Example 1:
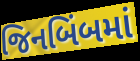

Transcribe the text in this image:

જિનબિંબમાં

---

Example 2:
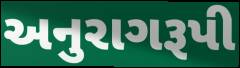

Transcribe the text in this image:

અનુરાગરૂપી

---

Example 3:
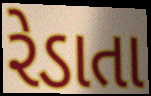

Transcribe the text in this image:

રેડાતા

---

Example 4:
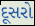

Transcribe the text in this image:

દૂસરો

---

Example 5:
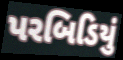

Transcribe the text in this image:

પરબિડિયું